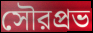
সৌরপ্রভ